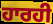
ਹਾਰਹੀ